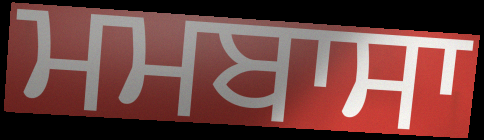
ਮਮਬਾਸਾ